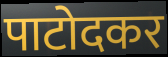
पाटोदकर